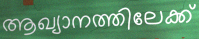
ആഖ്യാനത്തിലേക്ക്